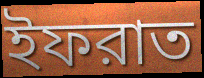
ইফরাত